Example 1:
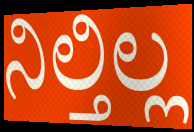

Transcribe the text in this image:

ನಿಲ್ತಿಲ್ಲ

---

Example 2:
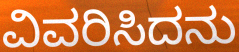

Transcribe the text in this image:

ವಿವರಿಸಿದನು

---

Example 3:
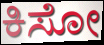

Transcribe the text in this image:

ಕಿಸೋ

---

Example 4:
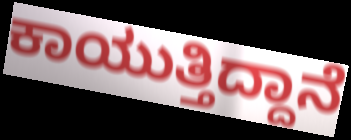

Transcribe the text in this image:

ಕಾಯುತ್ತಿದ್ದಾನೆ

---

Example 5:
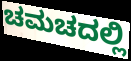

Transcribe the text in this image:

ಚಮಚದಲ್ಲಿ